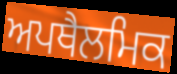
ਅਪਥੈਲਮਿਕ